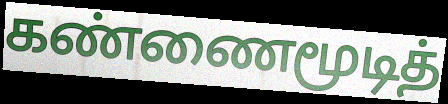
கண்ணைமூடித்